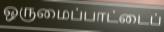
ஒருமைப்பாட்டைப்